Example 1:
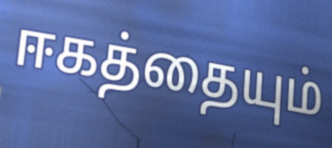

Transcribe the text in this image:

ஈகத்தையும்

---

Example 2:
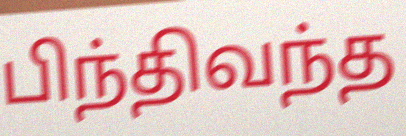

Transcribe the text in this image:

பிந்திவந்த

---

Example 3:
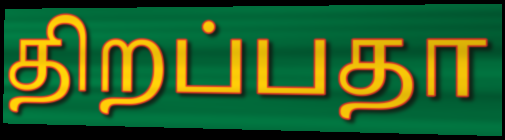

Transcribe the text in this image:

திறப்பதா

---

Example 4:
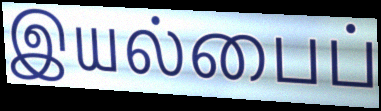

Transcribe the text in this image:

இயல்பைப்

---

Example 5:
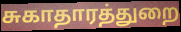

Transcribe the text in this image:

சுகாதாரத்துறை